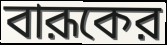
বারূকের